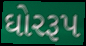
ઘોરરૂપ